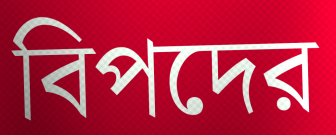
বিপদের